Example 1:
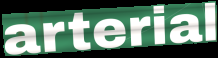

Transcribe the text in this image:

arterial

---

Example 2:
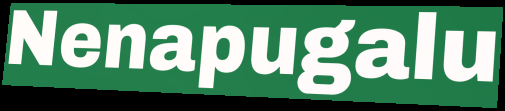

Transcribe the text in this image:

Nenapugalu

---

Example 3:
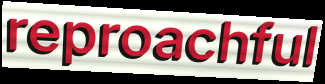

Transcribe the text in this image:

reproachful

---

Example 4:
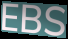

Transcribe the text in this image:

EBS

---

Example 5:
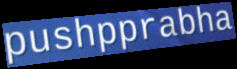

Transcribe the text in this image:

pushpprabha